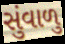
સુંવાળુ